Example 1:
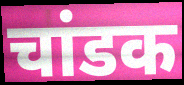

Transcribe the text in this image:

चांडक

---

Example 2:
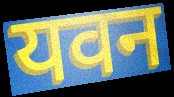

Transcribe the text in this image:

यवन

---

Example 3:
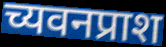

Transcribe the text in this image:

च्यवनप्राश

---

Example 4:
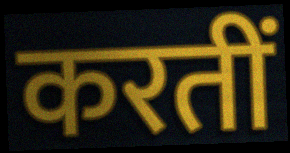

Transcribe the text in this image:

करतीं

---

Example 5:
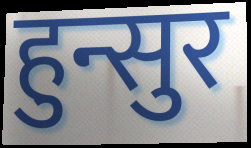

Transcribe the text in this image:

हुन्सुर